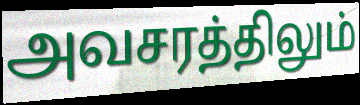
அவசரத்திலும்